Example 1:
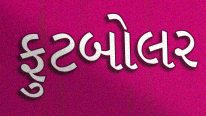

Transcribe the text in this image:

ફુટબોલર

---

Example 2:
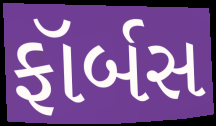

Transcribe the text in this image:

ફૉર્બસ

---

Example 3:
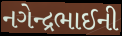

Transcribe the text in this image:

નગેન્દ્રભાઈની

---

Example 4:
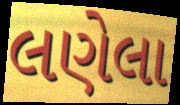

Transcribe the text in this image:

લણેલા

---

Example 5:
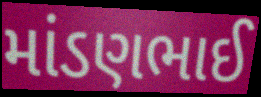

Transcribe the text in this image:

માંડણભાઈ